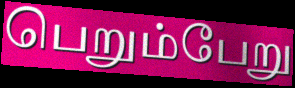
பெறும்பேறு